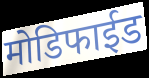
मोडिफाईड